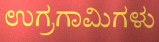
ಉಗ್ರಗಾಮಿಗಳು